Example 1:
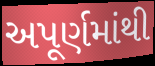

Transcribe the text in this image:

અપૂર્ણમાંથી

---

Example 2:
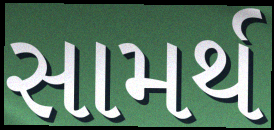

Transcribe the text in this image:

સામર્થ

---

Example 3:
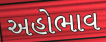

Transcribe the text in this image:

અહોભાવ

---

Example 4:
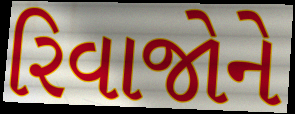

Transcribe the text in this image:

રિવાજોને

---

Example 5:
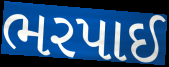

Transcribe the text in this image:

ભરપાઈ